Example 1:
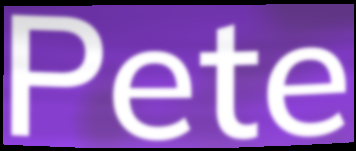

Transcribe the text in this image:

Pete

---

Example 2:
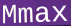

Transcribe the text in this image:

Mmax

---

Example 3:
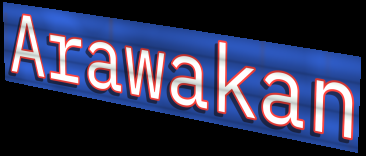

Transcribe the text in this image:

Arawakan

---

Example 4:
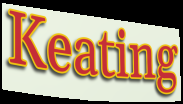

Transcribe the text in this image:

Keating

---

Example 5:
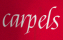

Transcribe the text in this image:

carpels